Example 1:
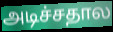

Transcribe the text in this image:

அடிச்சதால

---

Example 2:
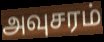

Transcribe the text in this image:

அவுசரம்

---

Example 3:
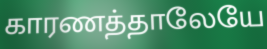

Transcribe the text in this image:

காரணத்தாலேயே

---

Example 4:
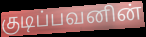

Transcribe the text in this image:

குடிப்பவனின்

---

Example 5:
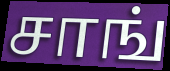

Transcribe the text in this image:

சாங்